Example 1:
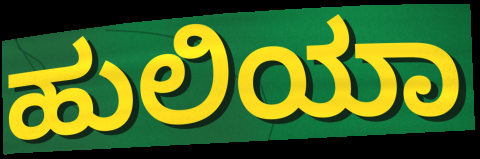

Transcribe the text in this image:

ಹುಲಿಯಾ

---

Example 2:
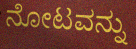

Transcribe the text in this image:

ನೋಟವನ್ನು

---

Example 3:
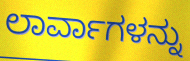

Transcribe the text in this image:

ಲಾರ್ವಾಗಳನ್ನು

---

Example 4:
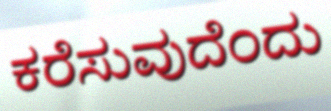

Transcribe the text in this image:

ಕರೆಸುವುದೆಂದು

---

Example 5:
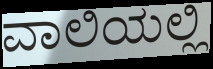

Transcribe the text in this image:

ವಾಲಿಯಲ್ಲಿ